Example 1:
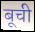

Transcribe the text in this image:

बूची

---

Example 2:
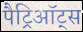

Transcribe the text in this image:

पैट्रिऑट्स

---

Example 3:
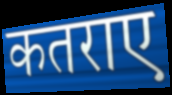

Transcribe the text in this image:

कतराए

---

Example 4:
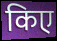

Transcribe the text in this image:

किए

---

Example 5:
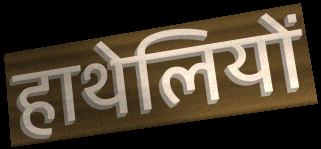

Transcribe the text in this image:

हाथेलियों